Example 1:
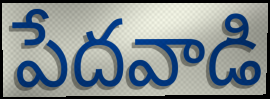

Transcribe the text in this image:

పేదవాడి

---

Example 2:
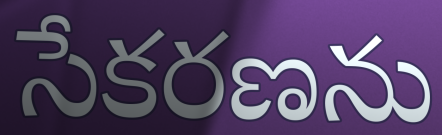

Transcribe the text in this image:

సేకరణను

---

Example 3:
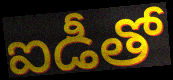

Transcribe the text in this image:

ఐడీతో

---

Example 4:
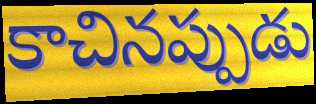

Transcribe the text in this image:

కాచినప్పుడు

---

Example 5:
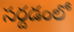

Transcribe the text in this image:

సర్దడంలో